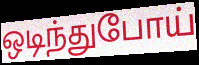
ஒடிந்துபோய்